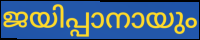
ജയിപ്പാനായും